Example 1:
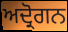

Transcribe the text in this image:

ਅਦ੍ਰੋਗਨ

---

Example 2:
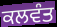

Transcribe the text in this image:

ਕਲਵੰਤ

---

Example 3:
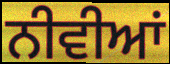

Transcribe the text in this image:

ਨੀਵੀਆਂ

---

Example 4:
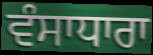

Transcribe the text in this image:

ਵੰਸਾਧਾਰਾ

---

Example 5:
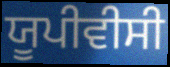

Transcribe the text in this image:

ਯੂਪੀਵੀਸੀ